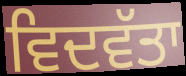
ਵਿਦਵੱਤਾ